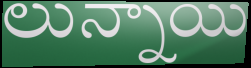
లున్నాయి